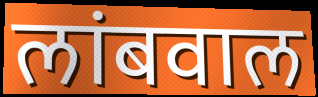
लांबवाल